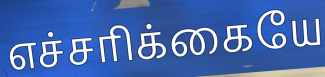
எச்சரிக்கையே